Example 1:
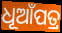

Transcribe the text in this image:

ଧୂଆଁପତ୍ର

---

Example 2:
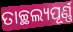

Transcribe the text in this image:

ତାଚ୍ଛଲ୍ୟପୂର୍ଣ୍ଣ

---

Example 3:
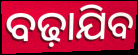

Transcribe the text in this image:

ବଢ଼ାଯିବ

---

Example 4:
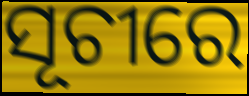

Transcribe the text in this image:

ସୂଚୀରେ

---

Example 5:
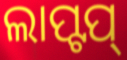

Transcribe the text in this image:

ଲାପ୍ଟପ୍